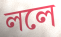
ললে